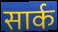
सार्क